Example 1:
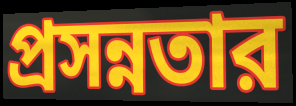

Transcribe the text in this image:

প্রসন্নতার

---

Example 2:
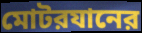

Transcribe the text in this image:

মোটরযানের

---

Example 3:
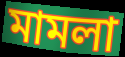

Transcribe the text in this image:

মামলা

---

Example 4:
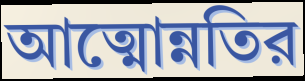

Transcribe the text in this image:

আত্মোন্নতির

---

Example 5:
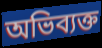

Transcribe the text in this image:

অভিব্যক্ত